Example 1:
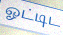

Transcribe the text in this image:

ஓட்டிட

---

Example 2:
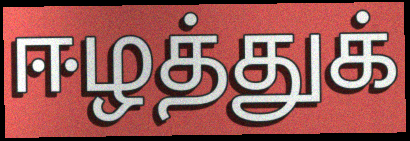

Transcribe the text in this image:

ஈழத்துக்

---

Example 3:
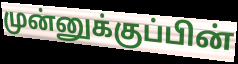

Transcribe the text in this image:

முன்னுக்குப்பின்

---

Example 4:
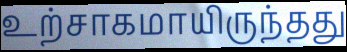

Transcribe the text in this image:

உற்சாகமாயிருந்தது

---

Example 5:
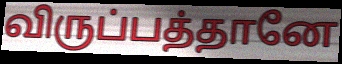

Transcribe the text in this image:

விருப்பத்தானே